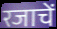
रजाचें